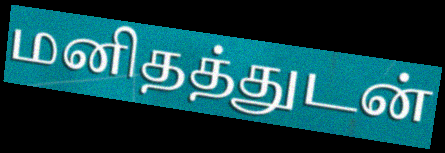
மனிதத்துடன்